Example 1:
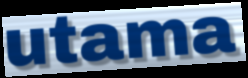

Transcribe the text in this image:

utama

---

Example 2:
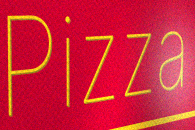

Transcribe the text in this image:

Pizza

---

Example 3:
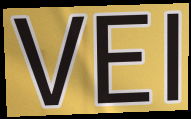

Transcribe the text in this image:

VEI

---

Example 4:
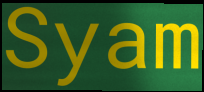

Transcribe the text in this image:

Syam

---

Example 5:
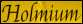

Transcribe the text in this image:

Holmium